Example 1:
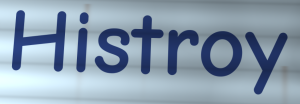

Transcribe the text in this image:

Histroy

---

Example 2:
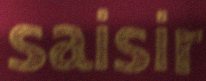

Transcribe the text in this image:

saisir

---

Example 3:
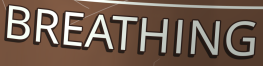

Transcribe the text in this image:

BREATHING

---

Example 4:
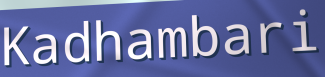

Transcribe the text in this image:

Kadhambari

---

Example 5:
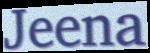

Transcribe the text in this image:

Jeena